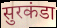
सुरकंडा